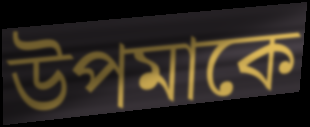
উপমাকে